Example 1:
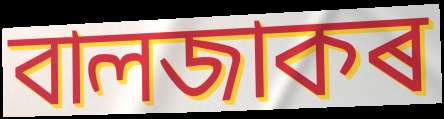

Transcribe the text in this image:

বালজাকৰ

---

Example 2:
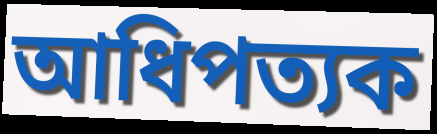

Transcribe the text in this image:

আধিপত্যক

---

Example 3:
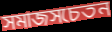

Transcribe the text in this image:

সমাজসচেতন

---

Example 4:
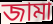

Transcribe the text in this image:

জামা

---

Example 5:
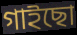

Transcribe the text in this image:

গাইছো